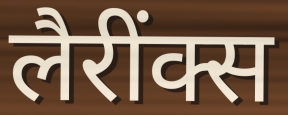
लैरींक्स